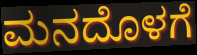
ಮನದೊಳಗೆ